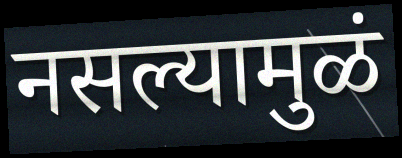
नसल्यामुळं